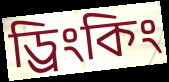
ড্রিংকিং